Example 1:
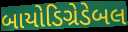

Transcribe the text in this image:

બાયોડિગ્રેડેબલ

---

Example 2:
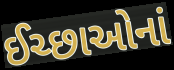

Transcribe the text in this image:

ઈચ્છાઓનાં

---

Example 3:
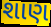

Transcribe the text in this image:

શાણ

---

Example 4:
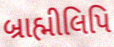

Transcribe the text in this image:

બ્રાહ્મીલિપિ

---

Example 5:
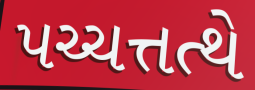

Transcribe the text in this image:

પચ્ચત્તત્થે